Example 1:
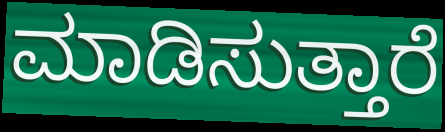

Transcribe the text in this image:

ಮಾಡಿಸುತ್ತಾರೆ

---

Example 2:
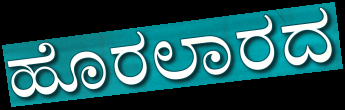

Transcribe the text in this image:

ಹೊರಲಾರದ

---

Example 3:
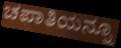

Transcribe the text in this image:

ಚಪಾತಿಯನ್ನೂ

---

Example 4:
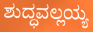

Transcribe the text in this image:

ಶುದ್ಧವಲ್ಲಯ್ಯ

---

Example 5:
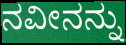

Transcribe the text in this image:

ನವೀನನ್ನು